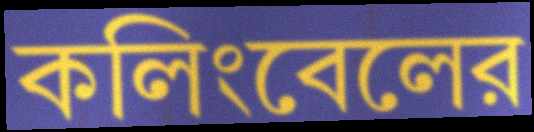
কলিংবেলের